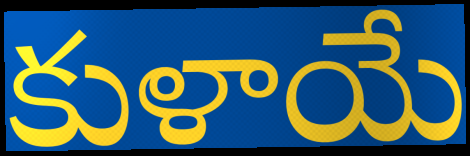
కుళాయే